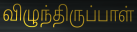
விழுந்திருப்பாள்